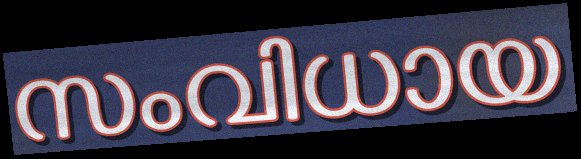
സംവിധായ